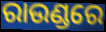
ରାଉଣ୍ଡରେ